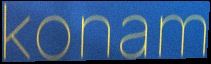
konam